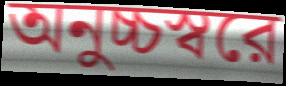
অনুচ্চস্বরে